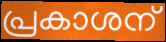
പ്രകാശന്